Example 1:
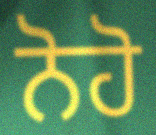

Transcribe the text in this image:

ਨੋਹੋ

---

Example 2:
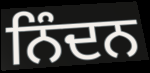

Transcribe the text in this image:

ਨਿੰਦਨ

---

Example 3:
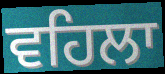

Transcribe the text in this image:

ਵਹਿਲਾ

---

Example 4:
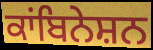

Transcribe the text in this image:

ਕਾਂਬਿਨੇਸ਼ਨ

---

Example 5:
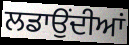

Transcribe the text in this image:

ਲਡਾਉਂਦੀਆਂ